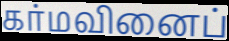
கர்மவினைப்